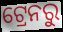
ଟ୍ରେନରୁ